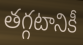
తగ్గటానికీ